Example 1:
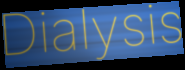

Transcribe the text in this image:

Dialysis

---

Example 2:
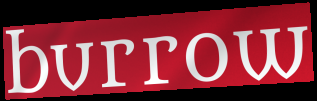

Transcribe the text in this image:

burrow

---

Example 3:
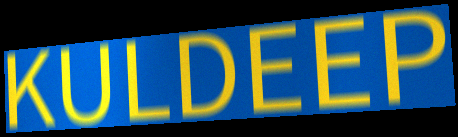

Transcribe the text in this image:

KULDEEP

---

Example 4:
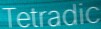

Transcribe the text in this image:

Tetradic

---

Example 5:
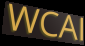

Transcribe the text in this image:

WCAI